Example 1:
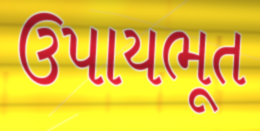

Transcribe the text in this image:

ઉપાયભૂત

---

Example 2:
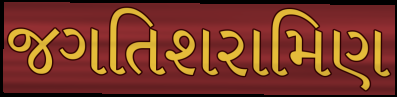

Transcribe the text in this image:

જગતિશરામિણ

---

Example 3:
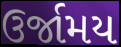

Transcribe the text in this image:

ઉર્જામય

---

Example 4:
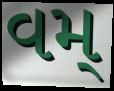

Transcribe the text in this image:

વમ્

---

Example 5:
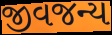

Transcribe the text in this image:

જીવજન્ય